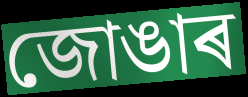
জোঙাৰ